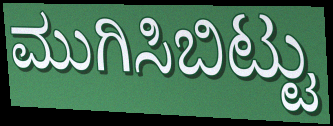
ಮುಗಿಸಿಬಿಟ್ಟು